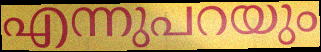
എന്നുപറയും